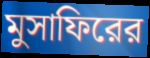
মুসাফিরের